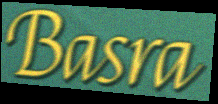
Basra